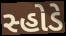
સ્હોડે